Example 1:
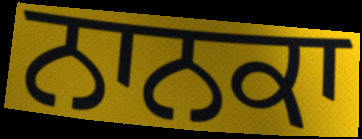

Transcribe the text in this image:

ਨਾਨਕਾ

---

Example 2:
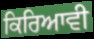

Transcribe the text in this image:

ਕਿਰਿਆਵੀ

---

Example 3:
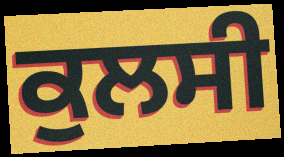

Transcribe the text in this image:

ਕੁਲਸੀ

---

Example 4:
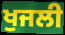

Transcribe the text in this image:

ਖੁਜਲੀ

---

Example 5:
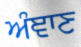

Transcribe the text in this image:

ਅੰਞਾਣ